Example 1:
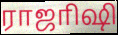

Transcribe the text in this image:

ராஜரிஷி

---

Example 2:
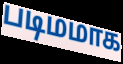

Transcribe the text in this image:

படிமமாக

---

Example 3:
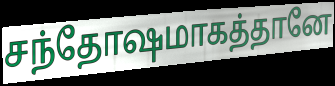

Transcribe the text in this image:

சந்தோஷமாகத்தானே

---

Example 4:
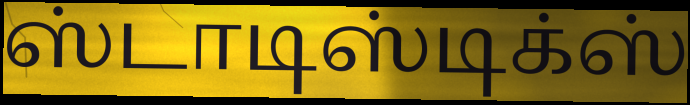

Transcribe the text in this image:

ஸ்டாடிஸ்டிக்ஸ்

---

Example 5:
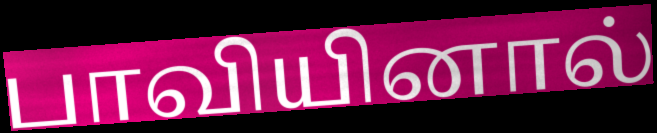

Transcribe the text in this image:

பாவியினால்